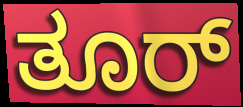
ತೂರ್